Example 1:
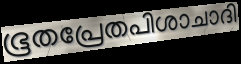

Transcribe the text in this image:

ഭൂതപ്രേതപിശാചാദി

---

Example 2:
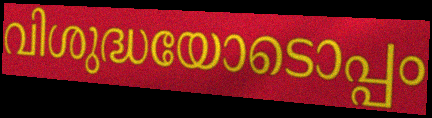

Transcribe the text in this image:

വിശുദ്ധയോടൊപ്പം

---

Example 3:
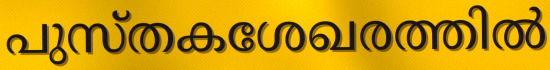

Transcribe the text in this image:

പുസ്തകശേഖരത്തിൽ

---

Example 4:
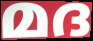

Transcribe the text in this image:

മദ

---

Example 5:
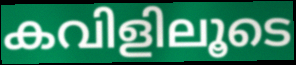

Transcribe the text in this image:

കവിളിലൂടെ